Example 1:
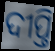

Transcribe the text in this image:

ଦୀପ୍ତି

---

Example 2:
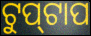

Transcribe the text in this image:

ଟୁପ୍‌ଟାପ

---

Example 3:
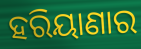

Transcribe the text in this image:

ହରିୟାଣାର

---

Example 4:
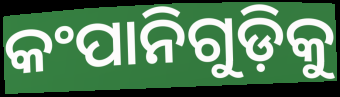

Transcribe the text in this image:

କଂପାନିଗୁଡ଼ିକୁ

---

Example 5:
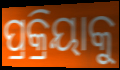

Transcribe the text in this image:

ପ୍ରକ୍ରିୟାକୁ